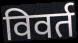
विवर्त